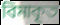
বিমাকৃত